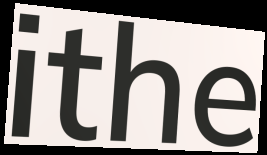
ithe